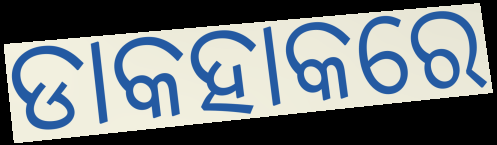
ଡାକହାକରେ